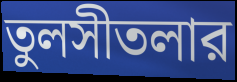
তুলসীতলার